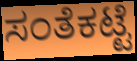
ಸಂತೆಕಟ್ಟೆ